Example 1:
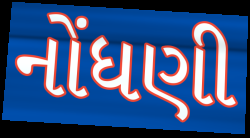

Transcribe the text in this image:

નોંધણી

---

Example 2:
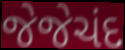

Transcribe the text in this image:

જેજેચંદ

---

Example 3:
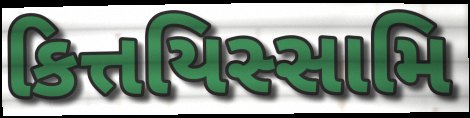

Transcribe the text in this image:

કિત્તયિસ્સામિ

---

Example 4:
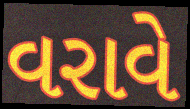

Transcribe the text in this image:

વરાવે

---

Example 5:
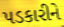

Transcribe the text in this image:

પડકારીને